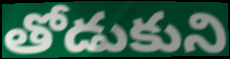
తోడుకుని